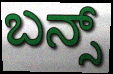
ಬನ್ಸ್